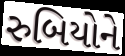
રુબિયોને